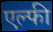
एल्फी